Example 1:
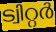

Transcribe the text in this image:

ട്വിറ്റർ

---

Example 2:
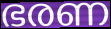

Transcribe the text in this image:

ഭരണ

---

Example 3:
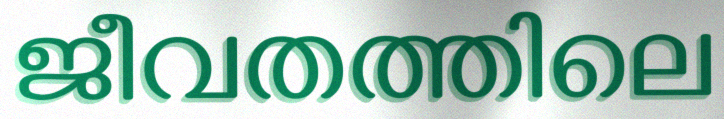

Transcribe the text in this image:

ജീവതത്തിലെ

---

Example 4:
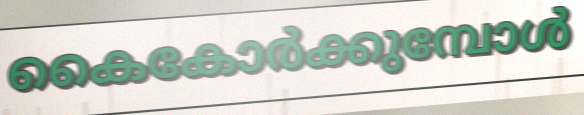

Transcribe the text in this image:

കൈകോർക്കുമ്പോൾ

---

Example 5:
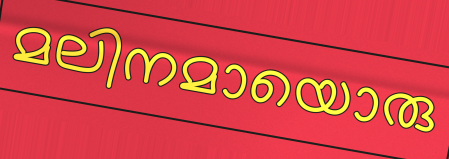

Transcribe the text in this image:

മലിനമായൊരു